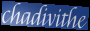
chadivithe